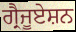
ਗ੍ਰੈਜੂਏਸ਼ਨ